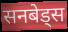
सनबेड्स